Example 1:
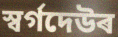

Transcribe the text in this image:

স্বৰ্গদেউৰ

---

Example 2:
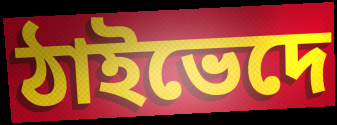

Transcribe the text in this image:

ঠাইভেদে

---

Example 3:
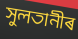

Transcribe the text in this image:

সুলতানীৰ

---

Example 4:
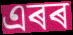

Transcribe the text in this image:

এৰৰ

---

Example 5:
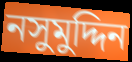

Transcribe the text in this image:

নসুমুদ্দিন